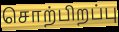
சொற்பிறப்பு